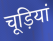
चूड़ियां